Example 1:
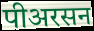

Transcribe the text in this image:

पीअरसन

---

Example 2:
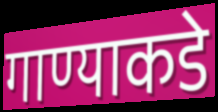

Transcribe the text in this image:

गाण्याकडे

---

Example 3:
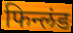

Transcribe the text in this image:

फिन्लंड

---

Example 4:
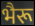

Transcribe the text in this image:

भैरू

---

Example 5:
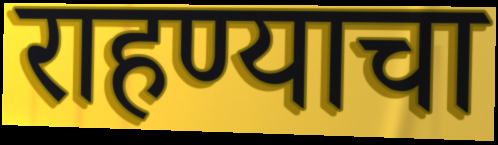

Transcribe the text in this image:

राहण्याचा